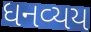
ધનવ્યય